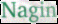
Nagin